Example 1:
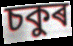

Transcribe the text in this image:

চকুৰ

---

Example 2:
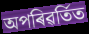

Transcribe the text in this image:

অপৰিৱৰ্তিত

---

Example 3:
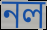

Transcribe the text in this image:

নল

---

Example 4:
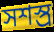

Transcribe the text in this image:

সশস্ত্ৰ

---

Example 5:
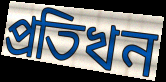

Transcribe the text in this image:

প্ৰতিখন